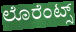
ಲೊರೆಂಟ್ಸ್